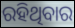
ରହିଥିବାର